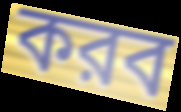
করব